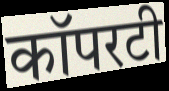
कॉपरटी